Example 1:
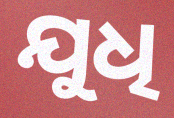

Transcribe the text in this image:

ଯୁଧି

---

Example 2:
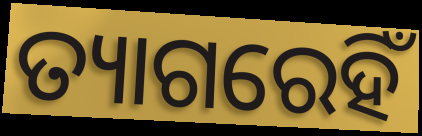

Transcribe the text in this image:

ତ୍ୟାଗରେହିଁ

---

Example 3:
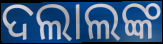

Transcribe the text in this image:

ଦଲାଲଙ୍କ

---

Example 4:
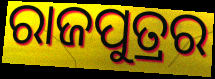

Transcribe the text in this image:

ରାଜପୁତ୍ରର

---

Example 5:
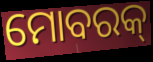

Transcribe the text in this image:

ମୋବରକ୍